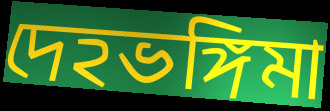
দেহভঙ্গিমা